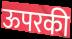
ऊपरकी